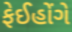
ફેઈહોંગે